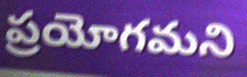
ప్రయోగమని